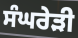
ਸੰਘਰੇੜੀ